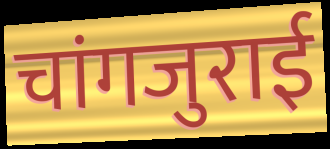
चांगजुराई